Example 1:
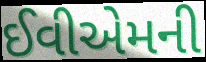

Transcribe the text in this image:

ઈવીએમની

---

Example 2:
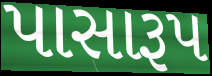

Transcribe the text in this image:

પાસારૂપ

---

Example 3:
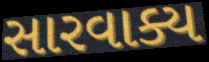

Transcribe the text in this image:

સારવાક્ય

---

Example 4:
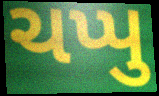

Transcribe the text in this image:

ચપ્પુ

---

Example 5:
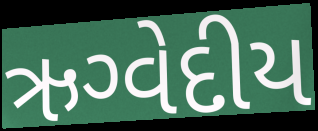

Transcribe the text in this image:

ઋગ્વેદીય